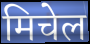
मिचेल